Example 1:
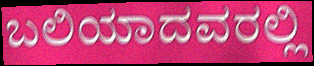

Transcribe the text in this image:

ಬಲಿಯಾದವರಲ್ಲಿ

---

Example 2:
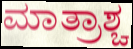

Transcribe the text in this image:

ಮಾತ್ರಾಶ್ಚ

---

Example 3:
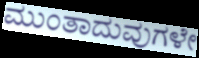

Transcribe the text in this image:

ಮುಂತಾದುವುಗಳೇ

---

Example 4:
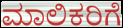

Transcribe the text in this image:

ಮಾಲಿಕರಿಗೆ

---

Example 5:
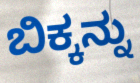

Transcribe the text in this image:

ಬಿಕ್ಕನ್ನು